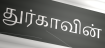
துர்காவின்